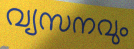
വ്യസനവും